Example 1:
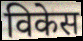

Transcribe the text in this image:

विकेस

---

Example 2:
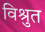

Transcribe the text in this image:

विश्रुत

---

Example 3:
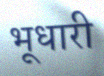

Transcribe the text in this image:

भूधारी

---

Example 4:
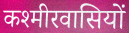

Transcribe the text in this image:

कश्मीरवासियों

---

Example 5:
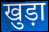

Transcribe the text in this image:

खुड़ा